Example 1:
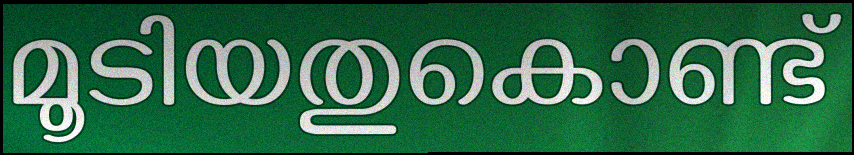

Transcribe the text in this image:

മൂടിയതുകൊണ്ട്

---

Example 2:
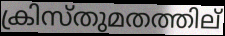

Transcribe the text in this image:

ക്രിസ്തുമതത്തില്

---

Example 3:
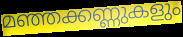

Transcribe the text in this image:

മഞ്ഞക്കണ്ണുകളും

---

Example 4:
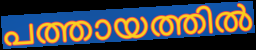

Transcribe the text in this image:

പത്തായത്തിൽ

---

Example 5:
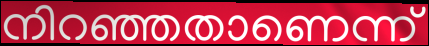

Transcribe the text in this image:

നിറഞ്ഞതാണെന്ന്